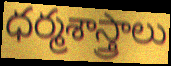
ధర్మశాస్త్రాలు